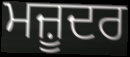
ਮਜ਼ੂਦਰ